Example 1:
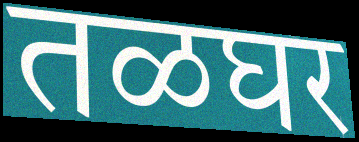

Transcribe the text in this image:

तळघर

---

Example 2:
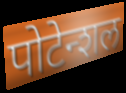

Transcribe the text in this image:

पोटेन्शल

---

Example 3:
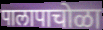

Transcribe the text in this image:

पालापाचोळा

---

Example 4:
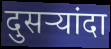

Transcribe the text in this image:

दुसऱ्यांदा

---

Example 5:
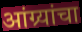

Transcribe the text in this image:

आंग्र्यांचा